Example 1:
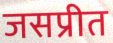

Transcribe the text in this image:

जसप्रीत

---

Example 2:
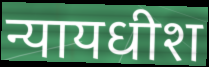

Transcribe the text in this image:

न्यायधीश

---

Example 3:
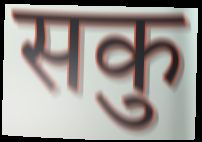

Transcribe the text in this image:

सकु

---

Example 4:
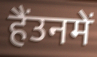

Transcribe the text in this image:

हैंउनमें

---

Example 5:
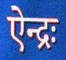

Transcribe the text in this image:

ऐन्द्रः